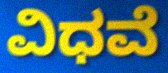
ವಿಧವೆ